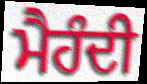
ਮੈਹੰਦੀ